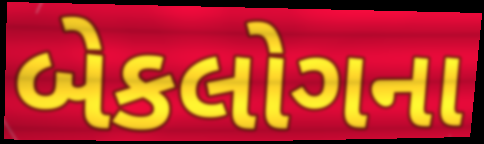
બેકલોગના